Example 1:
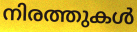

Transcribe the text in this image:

നിരത്തുകൾ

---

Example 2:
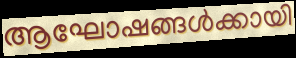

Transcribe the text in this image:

ആഘോഷങ്ങൾക്കായി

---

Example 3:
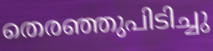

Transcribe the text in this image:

തെരഞ്ഞുപിടിച്ചു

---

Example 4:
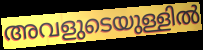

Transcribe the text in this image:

അവളുടെയുള്ളിൽ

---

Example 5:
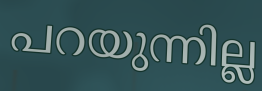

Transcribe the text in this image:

പറയുന്നില്ല